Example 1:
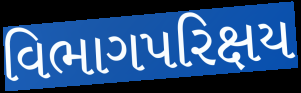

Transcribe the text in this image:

વિભાગપરિક્ષય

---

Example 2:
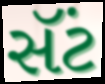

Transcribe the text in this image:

સૅંટ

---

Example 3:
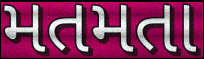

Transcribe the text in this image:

મતમતા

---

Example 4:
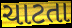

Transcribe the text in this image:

ચાટતા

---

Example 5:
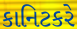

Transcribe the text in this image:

કાનિટકરે